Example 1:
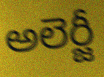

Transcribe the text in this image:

అలెర్జీ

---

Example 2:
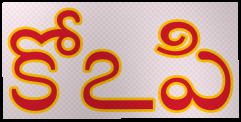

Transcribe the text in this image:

కోఽపి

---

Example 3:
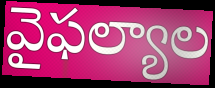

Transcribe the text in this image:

వైఫల్యాల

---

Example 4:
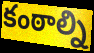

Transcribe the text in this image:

కంఠాల్ని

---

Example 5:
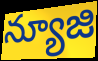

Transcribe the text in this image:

న్యూజి